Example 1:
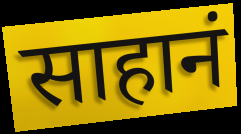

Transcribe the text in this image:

साहानं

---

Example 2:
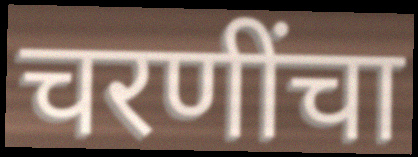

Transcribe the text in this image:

चरणींचा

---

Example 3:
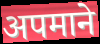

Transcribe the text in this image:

अपमाने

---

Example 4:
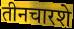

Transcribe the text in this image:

तीनचारशे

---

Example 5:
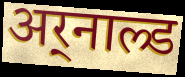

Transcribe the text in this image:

अर्नाल्ड